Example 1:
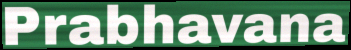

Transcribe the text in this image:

Prabhavana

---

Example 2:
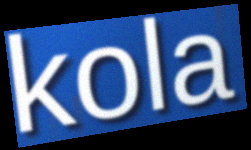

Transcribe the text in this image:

kola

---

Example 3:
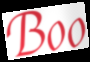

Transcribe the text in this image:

Boo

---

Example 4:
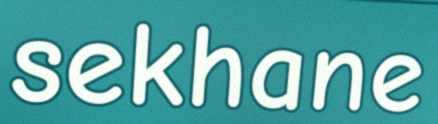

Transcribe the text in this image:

sekhane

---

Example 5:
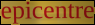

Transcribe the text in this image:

epicentre